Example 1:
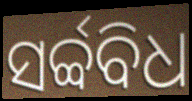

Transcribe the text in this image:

ସର୍ବ୍ବବିଧ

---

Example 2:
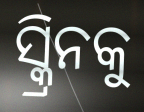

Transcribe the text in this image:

ସ୍କ୍ରିନକୁ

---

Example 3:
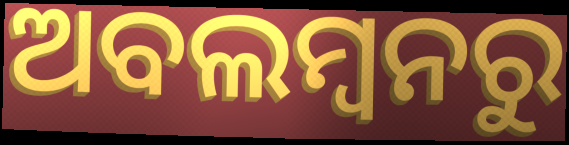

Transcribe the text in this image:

ଅବଲମ୍ବନରୁ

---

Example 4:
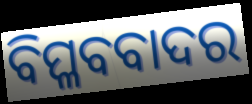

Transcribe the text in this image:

ବିପ୍ଳବବାଦର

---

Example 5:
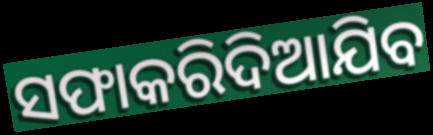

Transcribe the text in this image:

ସଫାକରିଦିଆଯିବ